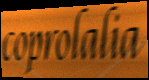
coprolalia